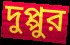
দুপ্পুর